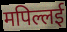
मपिल्लई